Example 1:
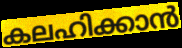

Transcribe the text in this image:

കലഹിക്കാൻ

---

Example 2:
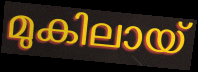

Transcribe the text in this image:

മുകിലായ്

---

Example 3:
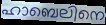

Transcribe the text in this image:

ഹാബെലിനെ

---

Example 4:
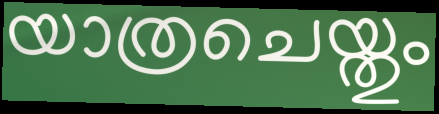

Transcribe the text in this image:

യാത്രചെയ്തും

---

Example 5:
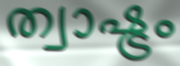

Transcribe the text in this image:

ത്വാഷ്ട്രം